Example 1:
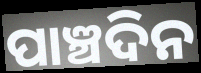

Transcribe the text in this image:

ପାଞ୍ଚଦିନ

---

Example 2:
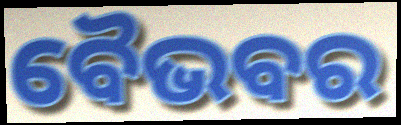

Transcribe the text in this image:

ବୈଭବର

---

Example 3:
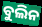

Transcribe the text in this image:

ବୁଲିନ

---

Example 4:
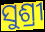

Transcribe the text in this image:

ସୁଶ୍ରୀ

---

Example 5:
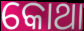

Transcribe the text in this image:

କୋଥା